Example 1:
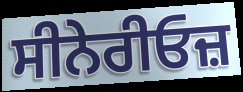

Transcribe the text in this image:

ਸੀਨੇਰੀਓਜ਼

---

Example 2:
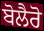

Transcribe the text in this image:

ਬੋਲੈਰੋ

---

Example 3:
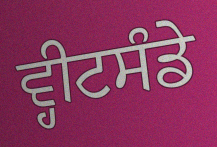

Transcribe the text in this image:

ਵ੍ਹੀਟਸੰਡੇ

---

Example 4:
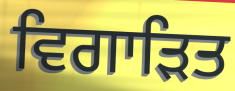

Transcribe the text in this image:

ਵਿਗਾੜਿਤ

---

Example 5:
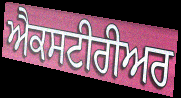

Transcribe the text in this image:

ਐਕਸਟੀਰੀਅਰ